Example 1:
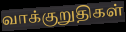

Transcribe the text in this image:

வாக்குறுதிகள்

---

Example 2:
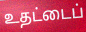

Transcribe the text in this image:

உதட்டைப்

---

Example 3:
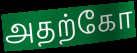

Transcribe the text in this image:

அதற்கோ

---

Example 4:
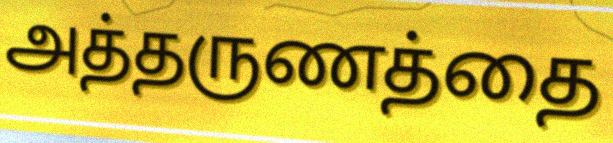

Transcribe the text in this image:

அத்தருணத்தை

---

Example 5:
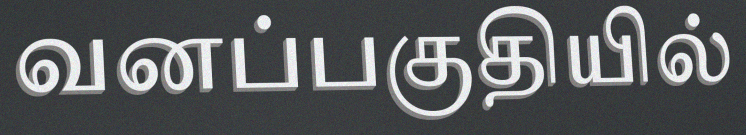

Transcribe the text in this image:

வனப்பகுதியில்